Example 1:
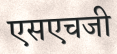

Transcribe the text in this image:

एसएचजी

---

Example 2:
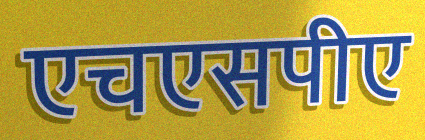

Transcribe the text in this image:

एचएसपीए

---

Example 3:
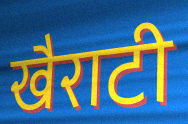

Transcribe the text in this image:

खैराटी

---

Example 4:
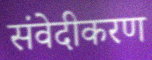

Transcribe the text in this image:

संवेदीकरण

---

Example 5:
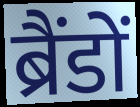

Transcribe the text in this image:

ब्रैंडों